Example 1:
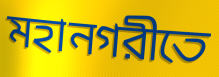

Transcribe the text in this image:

মহানগরীতে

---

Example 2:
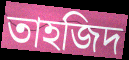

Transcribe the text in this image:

তাহজিদ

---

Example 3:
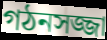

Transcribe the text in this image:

গঠনসজ্জা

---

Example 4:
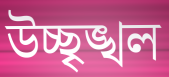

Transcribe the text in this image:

উচ্ছৃঙ্খল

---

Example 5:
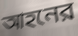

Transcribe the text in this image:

আহনের